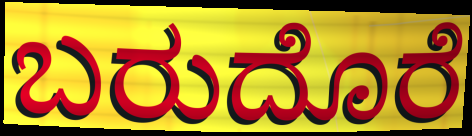
ಬರುದೊರೆ